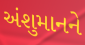
અંશુમાનને